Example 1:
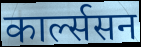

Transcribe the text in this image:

कार्ल्ससन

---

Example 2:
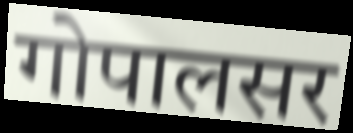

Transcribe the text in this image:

गोपालसर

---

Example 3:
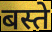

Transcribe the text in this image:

बस्ते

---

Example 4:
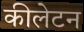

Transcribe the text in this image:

कीलेटन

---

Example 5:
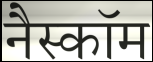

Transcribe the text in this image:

नैस्कॉम